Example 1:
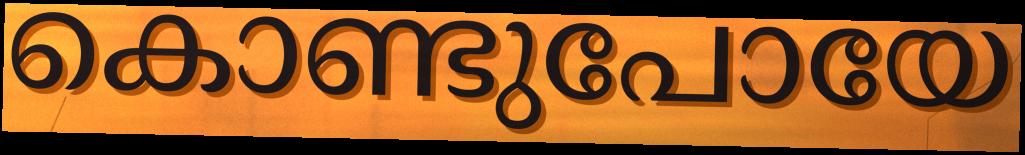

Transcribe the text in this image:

കൊണ്ടുപോയേ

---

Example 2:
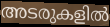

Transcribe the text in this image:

അടരുകളിൽ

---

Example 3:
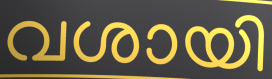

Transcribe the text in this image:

വശായി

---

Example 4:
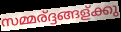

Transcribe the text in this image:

സമ്മര്ദ്ദങ്ങള്ക്കു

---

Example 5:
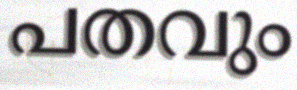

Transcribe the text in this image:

പതവും